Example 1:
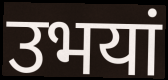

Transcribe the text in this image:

उभयां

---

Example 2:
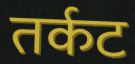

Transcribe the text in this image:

तर्कट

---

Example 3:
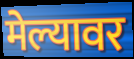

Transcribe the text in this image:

मेल्यावर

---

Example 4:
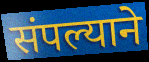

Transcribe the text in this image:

संपल्याने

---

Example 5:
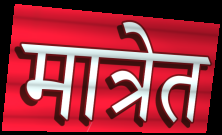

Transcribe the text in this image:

मात्रेत